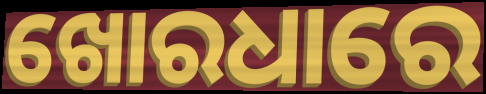
ଖୋରଧାରେ